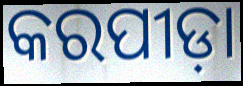
କରପୀଡ଼ା